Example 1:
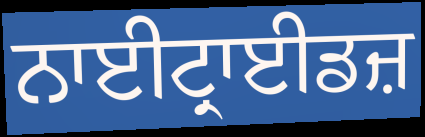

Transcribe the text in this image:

ਨਾਈਟ੍ਰਾਈਡਜ਼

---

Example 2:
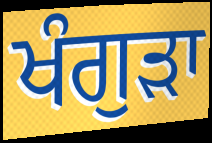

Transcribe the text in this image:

ਖੰਗੁੜਾ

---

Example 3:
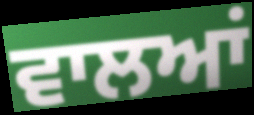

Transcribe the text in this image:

ਵਾਲਆਂ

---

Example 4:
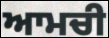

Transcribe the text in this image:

ਆਮਚੀ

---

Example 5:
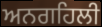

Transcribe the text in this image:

ਅਨਗਹਿਲੀ